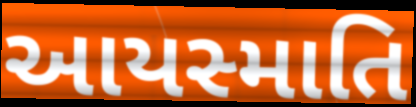
આયસ્માતિ